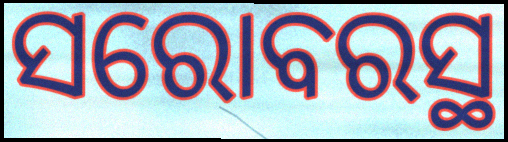
ସରୋବରସ୍ଥ